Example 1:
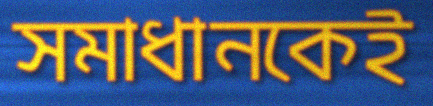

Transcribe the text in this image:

সমাধানকেই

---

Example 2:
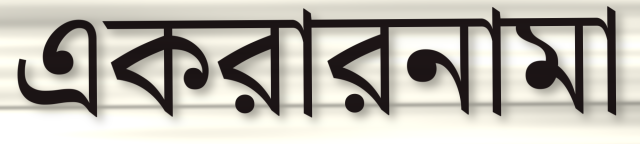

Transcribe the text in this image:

একরারনামা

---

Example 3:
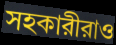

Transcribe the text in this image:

সহকারীরাও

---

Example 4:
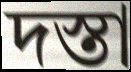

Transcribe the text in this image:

দস্তা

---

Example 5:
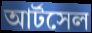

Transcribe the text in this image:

আর্টসেল